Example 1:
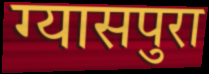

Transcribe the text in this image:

ग्यासपुरा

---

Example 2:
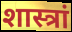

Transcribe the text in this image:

शास्त्रां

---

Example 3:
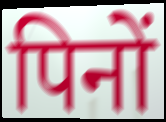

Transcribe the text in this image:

पिनों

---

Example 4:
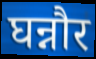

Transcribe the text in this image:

घन्नौर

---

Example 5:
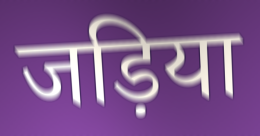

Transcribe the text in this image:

जड़िया